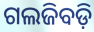
ଗଲଜିବଡ଼ି